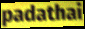
padathai